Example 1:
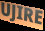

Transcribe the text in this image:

UJIRE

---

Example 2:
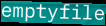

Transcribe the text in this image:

emptyfile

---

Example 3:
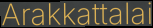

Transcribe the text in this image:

Arakkattalai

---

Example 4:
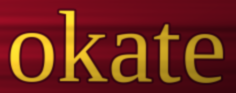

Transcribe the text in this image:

okate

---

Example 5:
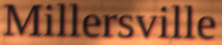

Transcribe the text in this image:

Millersville